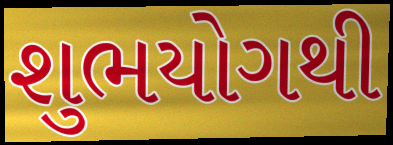
શુભયોગથી